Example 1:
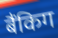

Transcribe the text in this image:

बैंकिग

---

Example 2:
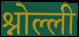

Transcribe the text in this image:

श्नोल्ली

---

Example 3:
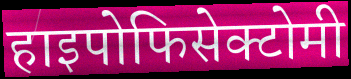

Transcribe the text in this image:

हाइपोफिसेक्टोमी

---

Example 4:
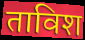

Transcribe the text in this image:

ताविश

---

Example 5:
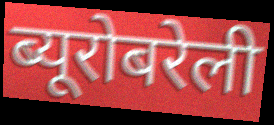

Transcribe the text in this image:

ब्यूरोबरेली